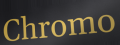
Chromo